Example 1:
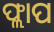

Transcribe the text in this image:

ଫ୍ଲାପ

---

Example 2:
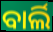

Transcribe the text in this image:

ବାର୍ଲି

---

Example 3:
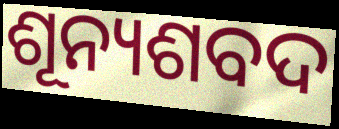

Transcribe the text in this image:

ଶୂନ୍ୟଶବଦ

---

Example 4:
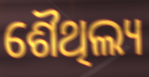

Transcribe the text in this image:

ଶୈଥିଲ୍ୟ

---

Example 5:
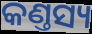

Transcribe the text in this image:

କଣ୍ତସ୍ୟ